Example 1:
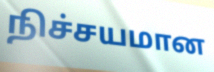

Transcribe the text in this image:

நிச்சயமான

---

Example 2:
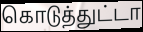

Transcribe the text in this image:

கொடுத்துட்டா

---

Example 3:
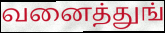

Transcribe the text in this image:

வனைத்துங்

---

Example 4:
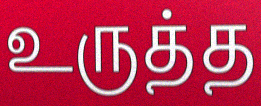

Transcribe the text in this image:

உருத்த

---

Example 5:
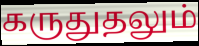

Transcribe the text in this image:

கருதுதலும்